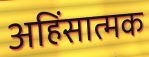
अहिंसात्मक